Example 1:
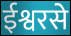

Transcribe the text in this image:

ईश्वरसे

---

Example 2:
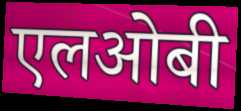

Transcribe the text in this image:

एलओबी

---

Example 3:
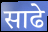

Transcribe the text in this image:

साढे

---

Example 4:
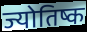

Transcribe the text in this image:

ज्योतिष्क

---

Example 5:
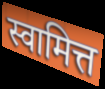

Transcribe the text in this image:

स्वामित्त